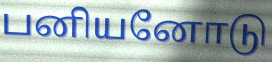
பனியனோடு